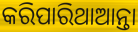
କରିପାରିଥାଆନ୍ତା